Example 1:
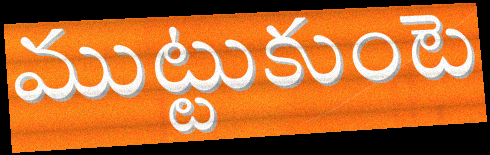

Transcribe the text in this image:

ముట్టుకుంటె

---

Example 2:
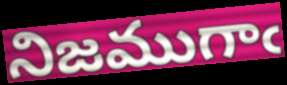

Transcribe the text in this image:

నిజముగాఁ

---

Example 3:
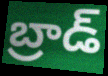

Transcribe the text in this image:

బ్రాడ్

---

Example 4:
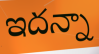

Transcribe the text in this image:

ఇదన్నా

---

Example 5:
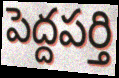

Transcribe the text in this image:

పెద్దపర్తి